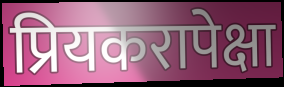
प्रियकरापेक्षा